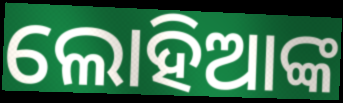
ଲୋହିଆଙ୍କ